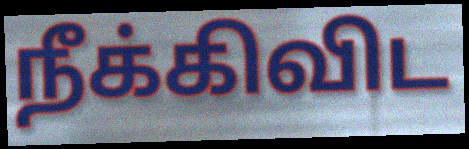
நீக்கிவிட